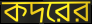
কদরের